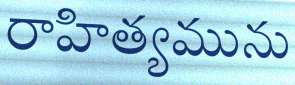
రాహిత్యమును